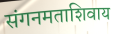
संगनमताशिवाय